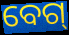
ବେଗ୍